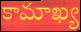
కామాఖ్య